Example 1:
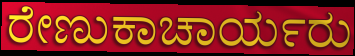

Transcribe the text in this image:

ರೇಣುಕಾಚಾರ್ಯರು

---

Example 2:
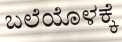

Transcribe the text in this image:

ಬಲೆಯೊಳಕ್ಕೆ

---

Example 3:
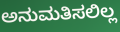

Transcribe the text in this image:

ಅನುಮತಿಸಲಿಲ್ಲ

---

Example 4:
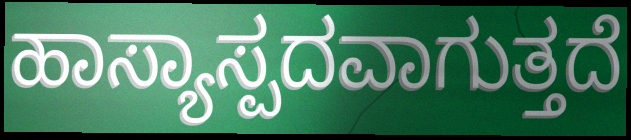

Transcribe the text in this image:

ಹಾಸ್ಯಾಸ್ಪದವಾಗುತ್ತದೆ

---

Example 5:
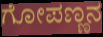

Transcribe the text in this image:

ಗೋಪಣ್ಣನ